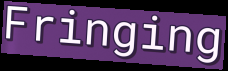
Fringing